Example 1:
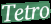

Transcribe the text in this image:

Tetro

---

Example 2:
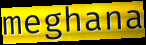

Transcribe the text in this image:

meghana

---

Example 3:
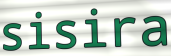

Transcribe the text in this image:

sisira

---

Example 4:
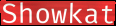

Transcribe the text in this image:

Showkat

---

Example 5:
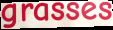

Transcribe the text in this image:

grasses